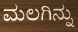
ಮಲಗಿನ್ನು